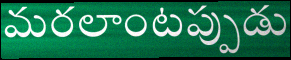
మరలాంటప్పుడు